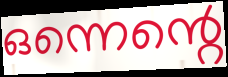
ഒന്നെന്റെ